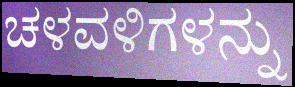
ಚಳವಳಿಗಳನ್ನು